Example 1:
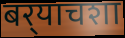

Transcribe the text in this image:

बर्‍याचशा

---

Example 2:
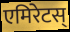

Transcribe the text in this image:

एमिरेटस्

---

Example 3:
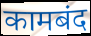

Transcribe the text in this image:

कामबंद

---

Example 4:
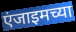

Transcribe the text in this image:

एंजाइमच्या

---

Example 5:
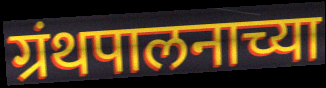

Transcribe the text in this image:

ग्रंथपालनाच्या